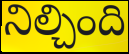
నిల్చింది